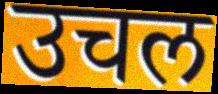
उचल